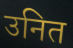
उनित